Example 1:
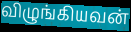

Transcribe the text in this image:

விழுங்கியவன்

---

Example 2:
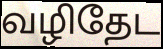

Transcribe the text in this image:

வழிதேட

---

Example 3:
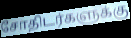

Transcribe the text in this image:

சோதிடர்களுக்கு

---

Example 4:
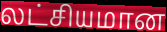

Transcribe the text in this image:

லட்சியமான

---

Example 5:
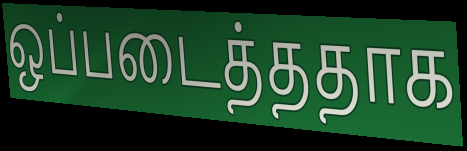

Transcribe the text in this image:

ஒப்படைத்ததாக